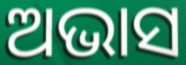
ଅଭାସ